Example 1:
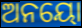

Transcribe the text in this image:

ଅନୟୋ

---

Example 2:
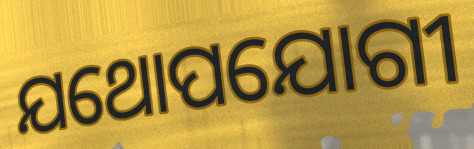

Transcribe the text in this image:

ଯଥୋପଯୋଗୀ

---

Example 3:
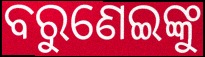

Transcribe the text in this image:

ବରୁଣେଇଙ୍କୁ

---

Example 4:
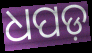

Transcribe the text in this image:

ଧପଡ଼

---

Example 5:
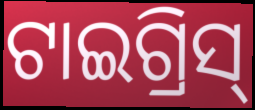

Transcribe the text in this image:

ଟାଇଗ୍ରିସ୍